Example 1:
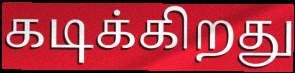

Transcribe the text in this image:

கடிக்கிறது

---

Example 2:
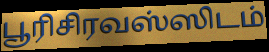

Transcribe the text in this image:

பூரிசிரவஸ்ஸிடம்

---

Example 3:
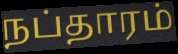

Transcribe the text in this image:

நப்தாரம்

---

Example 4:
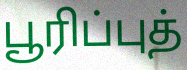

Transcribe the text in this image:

பூரிப்புத்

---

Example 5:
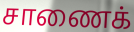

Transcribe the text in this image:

சாணைக்